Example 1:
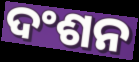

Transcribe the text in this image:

ଦଂଶନ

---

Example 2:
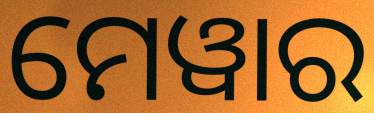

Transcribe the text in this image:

ମେୱାର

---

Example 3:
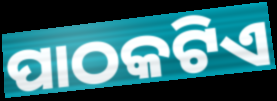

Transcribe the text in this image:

ପାଠକଟିଏ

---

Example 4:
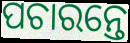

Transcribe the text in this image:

ପଚାରନ୍ତେ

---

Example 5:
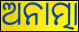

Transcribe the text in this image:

ଅନାତ୍ମା